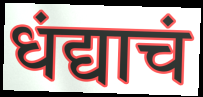
धंद्याचं